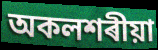
অকলশৰীয়া